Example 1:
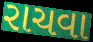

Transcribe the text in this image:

રાચવા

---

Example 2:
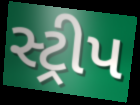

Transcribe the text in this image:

સ્ટ્રીપ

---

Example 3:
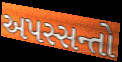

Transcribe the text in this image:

અપસ્સન્તો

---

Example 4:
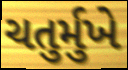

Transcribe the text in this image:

ચતુર્મુખે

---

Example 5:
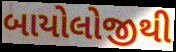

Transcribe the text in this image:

બાયોલોજીથી